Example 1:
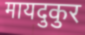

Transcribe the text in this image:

मायदुकुर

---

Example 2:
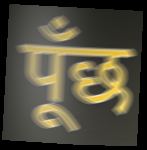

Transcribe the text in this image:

पूँछ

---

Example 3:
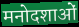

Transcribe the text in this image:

मनोदशाओं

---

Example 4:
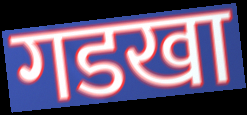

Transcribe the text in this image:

गडखा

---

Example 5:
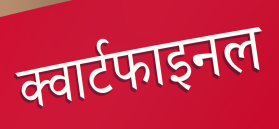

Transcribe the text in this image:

क्वार्टफाइनल